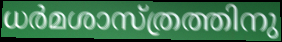
ധർമശാസ്ത്രത്തിനു